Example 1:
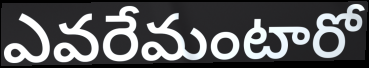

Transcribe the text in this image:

ఎవరేమంటారో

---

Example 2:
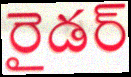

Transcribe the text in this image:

రైడర్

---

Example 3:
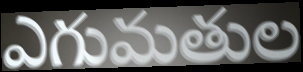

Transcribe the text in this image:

ఎగుమతుల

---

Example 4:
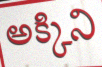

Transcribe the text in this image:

అక్కిని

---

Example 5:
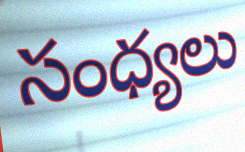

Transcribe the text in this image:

సంధ్యలు